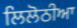
ਲਿਲੋਠੀਆ